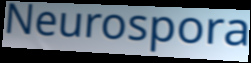
Neurospora